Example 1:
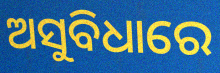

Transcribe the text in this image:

ଅସୁବିଧାରେ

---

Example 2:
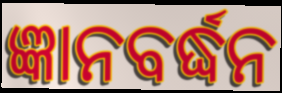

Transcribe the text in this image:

ଜ୍ଞାନବର୍ଦ୍ଧନ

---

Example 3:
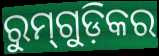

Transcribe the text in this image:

ରୁମ୍‌ଗୁଡ଼ିକର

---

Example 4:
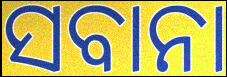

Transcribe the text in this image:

ସବାନା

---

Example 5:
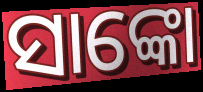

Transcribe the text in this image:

ସାଙ୍କୋ